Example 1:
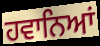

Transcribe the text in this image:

ਹਵਾਨਿਆਂ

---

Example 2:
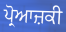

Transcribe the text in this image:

ਪ੍ਰੋਆਜ਼ਕੀ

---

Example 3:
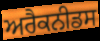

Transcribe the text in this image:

ਅਰੈਕਨੀਡਸ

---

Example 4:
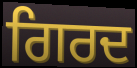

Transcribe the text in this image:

ਗਿਰਦ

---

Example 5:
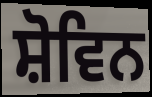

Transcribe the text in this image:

ਸ਼ੋਵਿਨ